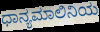
ಧಾನ್ಯಮಾಲಿನಿಯ